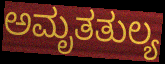
ಅಮೃತತುಲ್ಯ